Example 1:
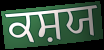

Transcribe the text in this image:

ਕਸ਼ਯ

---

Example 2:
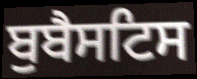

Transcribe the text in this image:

ਬੁਬੈਸਟਿਸ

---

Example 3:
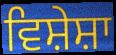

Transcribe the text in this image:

ਵਿਸ਼ੇਸ਼ਾ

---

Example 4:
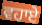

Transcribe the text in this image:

ਵਹਾਏ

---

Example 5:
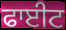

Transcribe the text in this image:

ਫਾਈਟ